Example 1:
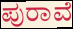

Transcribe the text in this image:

ಪುರಾವೆ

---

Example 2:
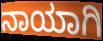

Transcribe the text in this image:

ನಾಯಾಗಿ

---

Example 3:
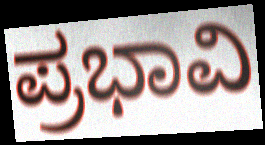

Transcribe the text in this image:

ಪ್ರಭಾವಿ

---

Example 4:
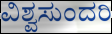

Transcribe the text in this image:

ವಿಶ್ವಸುಂದರಿ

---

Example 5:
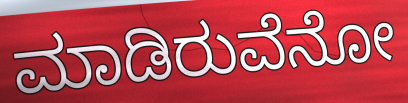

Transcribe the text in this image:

ಮಾಡಿರುವೆನೋ